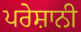
ਪਰੇਸ਼ਾਨੀ